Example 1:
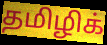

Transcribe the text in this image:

தமிழிக்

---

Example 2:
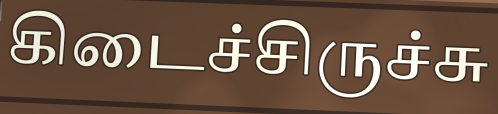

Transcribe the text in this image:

கிடைச்சிருச்சு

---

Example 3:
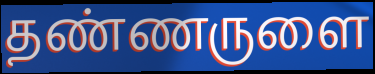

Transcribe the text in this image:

தண்ணருளை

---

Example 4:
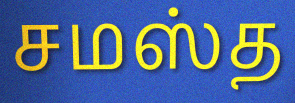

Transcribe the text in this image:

சமஸ்த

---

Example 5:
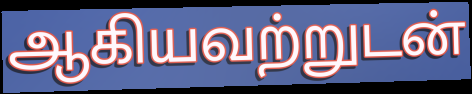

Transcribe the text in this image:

ஆகியவற்றுடன்